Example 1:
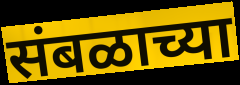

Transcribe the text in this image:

संबळाच्या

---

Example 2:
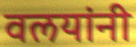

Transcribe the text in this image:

वलयांनी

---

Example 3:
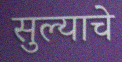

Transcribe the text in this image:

सुल्याचे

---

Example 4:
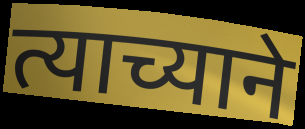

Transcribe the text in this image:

त्याच्याने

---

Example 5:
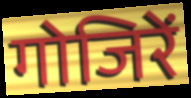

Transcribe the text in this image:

गोजिरें